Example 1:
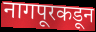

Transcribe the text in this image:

नागपूरकडून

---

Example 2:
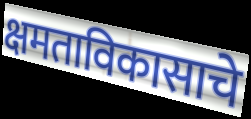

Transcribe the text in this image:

क्षमताविकासाचे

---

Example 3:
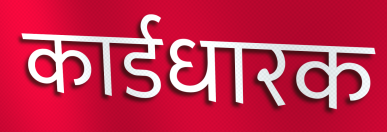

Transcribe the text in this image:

कार्डधारक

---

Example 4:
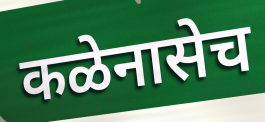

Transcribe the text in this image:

कळेनासेच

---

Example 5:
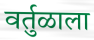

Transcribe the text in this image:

वर्तुळाला